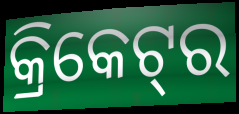
କ୍ରିକେଟ୍‌ର